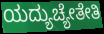
ಯದ್ಯುಚ್ಯೇತೇತಿ